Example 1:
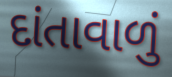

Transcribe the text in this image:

દાંતાવાળું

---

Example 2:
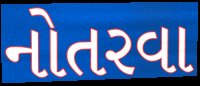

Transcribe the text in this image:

નોતરવા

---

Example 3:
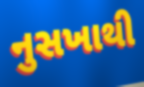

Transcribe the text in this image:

નુસખાથી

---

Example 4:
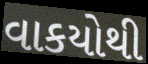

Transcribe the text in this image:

વાકયોથી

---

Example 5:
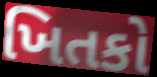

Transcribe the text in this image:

ખિતકો